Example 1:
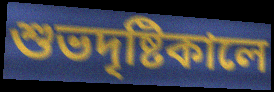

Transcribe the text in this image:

শুভদৃষ্টিকালে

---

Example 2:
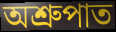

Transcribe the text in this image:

অশ্রুপাত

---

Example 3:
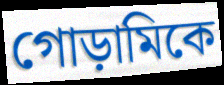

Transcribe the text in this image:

গোড়ামিকে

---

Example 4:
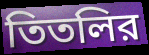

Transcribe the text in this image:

তিতলির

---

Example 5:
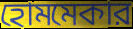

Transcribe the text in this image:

হোমমেকার